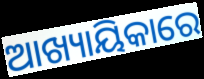
ଆଖ୍ୟାୟିକାରେ